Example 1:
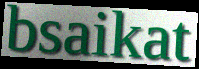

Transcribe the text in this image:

bsaikat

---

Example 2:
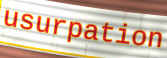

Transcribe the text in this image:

usurpation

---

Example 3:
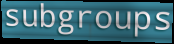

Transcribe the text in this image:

subgroups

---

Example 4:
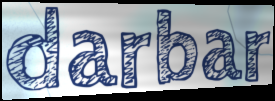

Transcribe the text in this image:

darbar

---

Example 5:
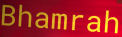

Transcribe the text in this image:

Bhamrah